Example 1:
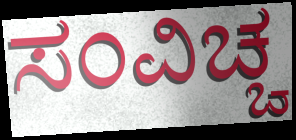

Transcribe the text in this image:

ಸಂವಿಚ್ಚ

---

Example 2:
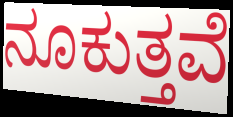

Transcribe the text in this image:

ನೂಕುತ್ತವೆ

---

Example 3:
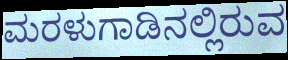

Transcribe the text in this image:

ಮರಳುಗಾಡಿನಲ್ಲಿರುವ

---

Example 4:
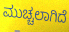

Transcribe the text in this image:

ಮುಚ್ಚಲಾಗಿದೆ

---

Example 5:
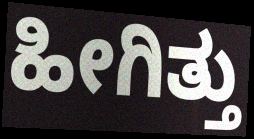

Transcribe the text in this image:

ಹೀಗಿತ್ತು